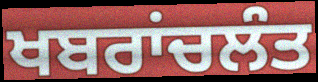
ਖਬਰਾਂਚਲੰਤ